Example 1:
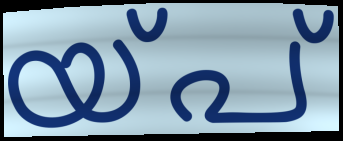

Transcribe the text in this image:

യ്പ്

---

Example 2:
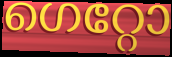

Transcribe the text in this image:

ഗെറ്റോ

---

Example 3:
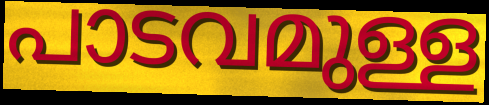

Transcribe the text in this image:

പാടവമുള്ള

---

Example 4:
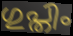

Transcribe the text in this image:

ഗുപ്തിം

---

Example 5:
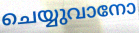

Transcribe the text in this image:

ചെയ്യുവാനോ